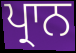
ਪ੍ਰਾਨ